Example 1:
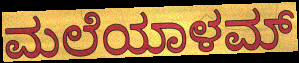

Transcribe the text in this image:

ಮಲೆಯಾಳಮ್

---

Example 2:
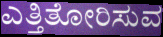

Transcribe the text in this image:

ಎತ್ತಿತೋರಿಸುವ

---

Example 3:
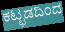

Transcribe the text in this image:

ಕಟ್ಟಡದಿಂದ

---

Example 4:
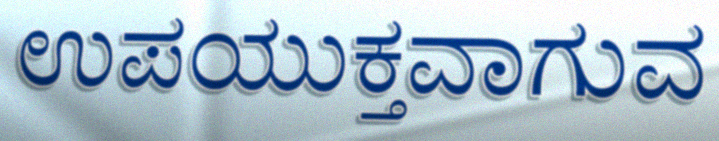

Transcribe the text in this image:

ಉಪಯುಕ್ತವಾಗುವ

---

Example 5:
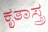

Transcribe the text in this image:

ಕೃತಾಸ್ತ್ರ